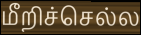
மீறிச்செல்ல